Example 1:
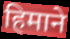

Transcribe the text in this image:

हिमाने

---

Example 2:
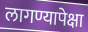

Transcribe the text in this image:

लागण्यापेक्षा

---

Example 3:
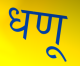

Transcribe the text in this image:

धणू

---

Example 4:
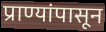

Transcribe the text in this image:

प्राण्यांपासून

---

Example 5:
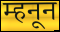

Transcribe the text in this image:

म्हनून